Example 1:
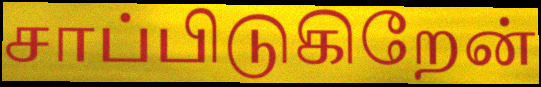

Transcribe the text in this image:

சாப்பிடுகிறேன்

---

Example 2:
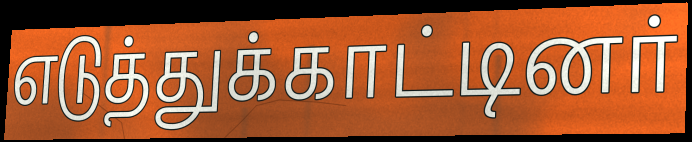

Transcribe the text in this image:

எடுத்துக்காட்டினர்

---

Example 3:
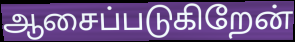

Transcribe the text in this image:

ஆசைப்படுகிறேன்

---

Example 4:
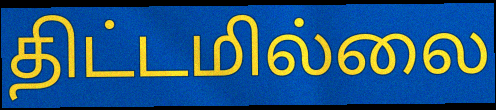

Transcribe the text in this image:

திட்டமில்லை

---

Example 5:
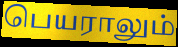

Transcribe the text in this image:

பெயராலும்